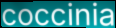
coccinia